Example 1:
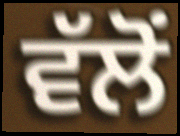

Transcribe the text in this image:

ਵੱਲੋਂ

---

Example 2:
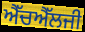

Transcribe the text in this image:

ਐੱਚਐੱਲਜੀ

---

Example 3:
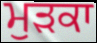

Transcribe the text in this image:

ਮੁੜਕਾ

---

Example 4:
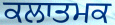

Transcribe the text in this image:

ਕਲਾਤਮਕ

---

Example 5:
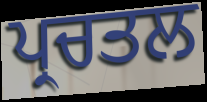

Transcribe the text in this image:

ਪ੍ਰਚਤਲ